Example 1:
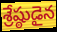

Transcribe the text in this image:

శ్రేష్ఠుడైన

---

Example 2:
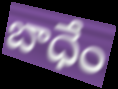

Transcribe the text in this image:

బాధేం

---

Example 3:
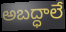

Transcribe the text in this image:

అబద్ధాలే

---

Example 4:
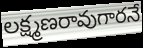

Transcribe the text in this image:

లక్ష్మణరావుగారనే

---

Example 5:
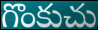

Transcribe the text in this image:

గొంకుచు